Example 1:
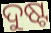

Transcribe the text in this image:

ଦୁଷ୍ଟ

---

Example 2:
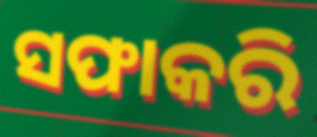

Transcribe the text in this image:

ସଫାକରି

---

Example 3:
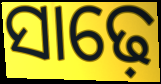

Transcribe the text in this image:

ସାଢ଼େ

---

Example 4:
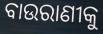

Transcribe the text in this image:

ବାଉରାଣୀକୁ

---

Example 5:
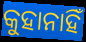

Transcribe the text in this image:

କୁହାନାହିଁ